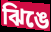
ঝিঙে